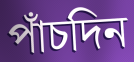
পাঁচদিন